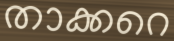
താക്കറെ